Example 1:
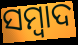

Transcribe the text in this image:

ସମ୍ବାଦ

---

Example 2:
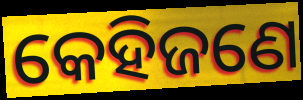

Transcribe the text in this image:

କେହିଜଣେ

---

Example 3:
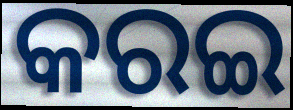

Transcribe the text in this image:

କରଇ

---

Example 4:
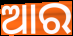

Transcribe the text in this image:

ଆର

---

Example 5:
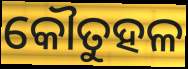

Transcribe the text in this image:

କୌତୁହଳ